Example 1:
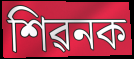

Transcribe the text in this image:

শিৱনক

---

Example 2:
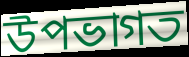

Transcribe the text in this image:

উপভাগত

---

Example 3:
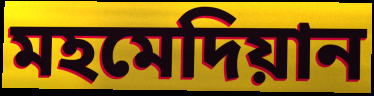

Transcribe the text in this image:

মহমেদিয়ান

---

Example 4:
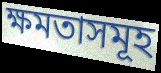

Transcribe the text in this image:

ক্ষমতাসমূহ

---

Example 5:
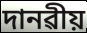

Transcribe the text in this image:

দানৱীয়